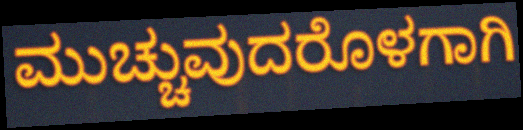
ಮುಚ್ಚುವುದರೊಳಗಾಗಿ